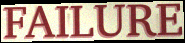
FAILURE